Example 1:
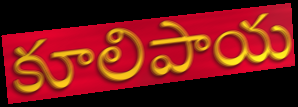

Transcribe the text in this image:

కూలిపాయ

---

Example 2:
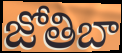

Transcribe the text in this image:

జోతిబా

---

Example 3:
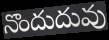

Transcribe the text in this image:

నొందుదువు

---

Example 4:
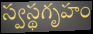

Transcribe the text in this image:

స్వస్థగృహం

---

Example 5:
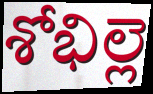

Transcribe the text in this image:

శోభిల్లె